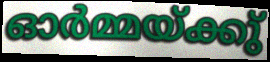
ഓർമ്മയ്ക്കു്